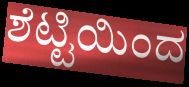
ಶೆಟ್ಟಿಯಿಂದ